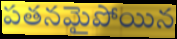
పతనమైపోయిన